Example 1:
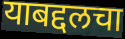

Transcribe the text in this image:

याबद्दलचा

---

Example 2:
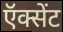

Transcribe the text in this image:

ऍक्सेंट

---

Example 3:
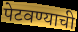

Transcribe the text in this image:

पेटवण्याची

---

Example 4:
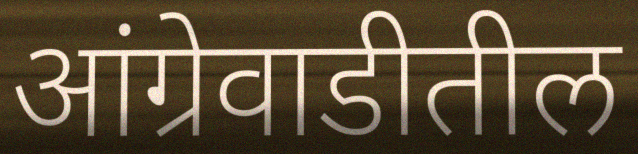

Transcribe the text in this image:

आंग्रेवाडीतील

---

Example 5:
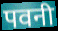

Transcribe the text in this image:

पवनी